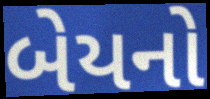
બેયનો